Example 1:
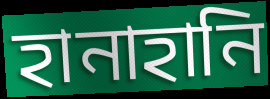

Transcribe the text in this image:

হানাহানি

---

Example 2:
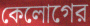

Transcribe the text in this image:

কেলোগের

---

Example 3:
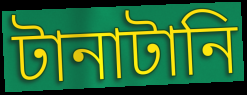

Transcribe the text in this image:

টানাটানি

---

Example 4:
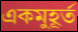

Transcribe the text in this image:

একমুহূর্ত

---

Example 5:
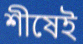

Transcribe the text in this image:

শীষেই